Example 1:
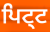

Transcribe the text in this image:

ਪਿਟ੍ਟ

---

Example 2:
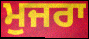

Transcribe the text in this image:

ਮੁਜਰਾ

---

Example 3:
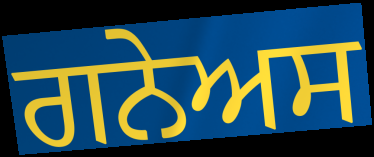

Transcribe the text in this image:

ਗਨੇਅਸ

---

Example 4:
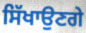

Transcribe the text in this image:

ਸਿੱਖਾਉਣਗੇ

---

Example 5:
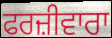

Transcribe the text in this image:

ਫਰਜ਼ੀਵਾਰਾ